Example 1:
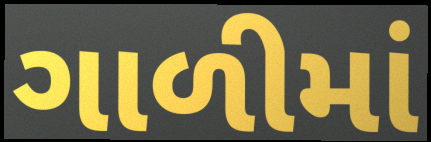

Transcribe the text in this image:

ગાળીમાં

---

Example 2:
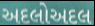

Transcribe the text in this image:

અદલોઅદલ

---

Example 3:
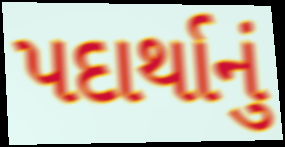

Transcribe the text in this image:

પદાર્થાનું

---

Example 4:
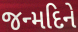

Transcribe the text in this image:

જન્મદિને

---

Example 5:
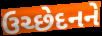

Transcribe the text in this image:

ઉચ્છેદનને